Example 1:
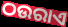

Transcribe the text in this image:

ଠଉରାଏ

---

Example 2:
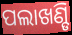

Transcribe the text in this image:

ପଲାଖଣ୍ଡି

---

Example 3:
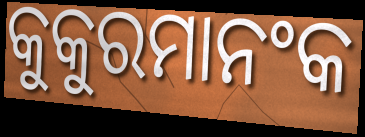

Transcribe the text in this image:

କୁକୁରମାନଂକ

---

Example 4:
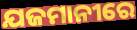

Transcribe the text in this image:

ଯଜମାନୀରେ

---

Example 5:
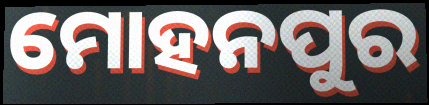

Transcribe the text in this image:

ମୋହନପୁର